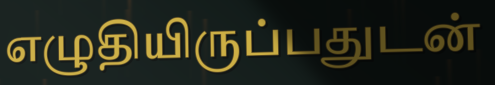
எழுதியிருப்பதுடன்